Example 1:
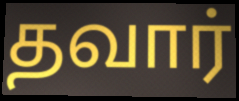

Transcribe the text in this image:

தவார்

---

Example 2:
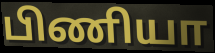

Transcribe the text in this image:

பிணியா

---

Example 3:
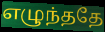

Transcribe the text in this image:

எழுந்ததே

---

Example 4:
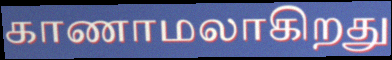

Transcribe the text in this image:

காணாமலாகிறது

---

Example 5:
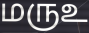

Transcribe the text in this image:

மருஉ